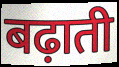
बढ़ाती